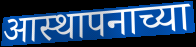
आस्थापनाच्या